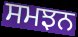
ਸਮਝਨ